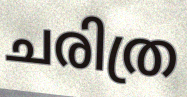
ചരിത്ര